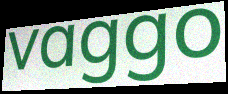
vaggo